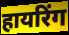
हायरिंग